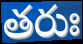
తరుః